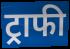
ट्राफी